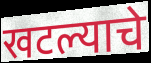
खटल्याचे